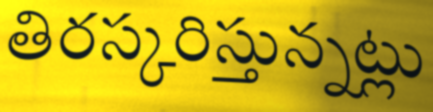
తిరస్కరిస్తున్నట్లు